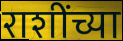
राशींच्या